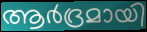
ആർദ്രമായി